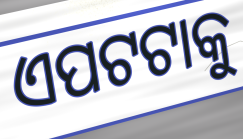
ଏପଟଟାକୁ